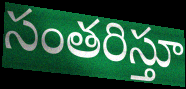
సంతరిస్తూ